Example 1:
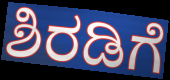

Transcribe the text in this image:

ಶಿರಡಿಗೆ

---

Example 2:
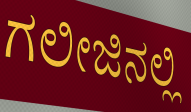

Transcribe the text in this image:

ಗಲೀಜಿನಲ್ಲಿ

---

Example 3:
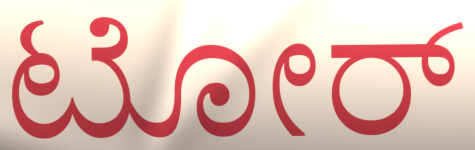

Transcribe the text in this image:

ಟೋರ್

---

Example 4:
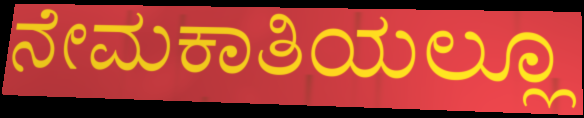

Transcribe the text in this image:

ನೇಮಕಾತಿಯಲ್ಲೂ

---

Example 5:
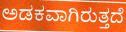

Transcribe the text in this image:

ಅಡಕವಾಗಿರುತ್ತದೆ